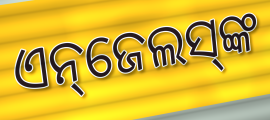
ଏନ୍‌ଜେଲସ୍‌ଙ୍କ